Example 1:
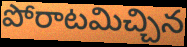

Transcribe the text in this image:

పోరాటమిచ్చిన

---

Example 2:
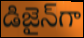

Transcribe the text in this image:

డిజైన్‌గా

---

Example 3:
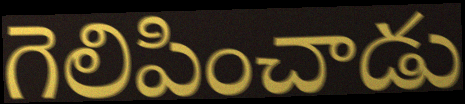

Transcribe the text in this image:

గెలిపించాడు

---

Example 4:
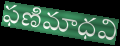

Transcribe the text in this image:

ఫణిమాధవి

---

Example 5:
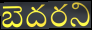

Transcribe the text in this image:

బెదరని